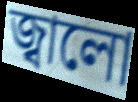
জ্বালো